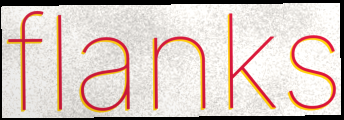
flanks